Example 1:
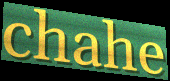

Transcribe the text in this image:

chahe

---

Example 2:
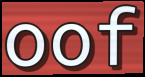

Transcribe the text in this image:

oof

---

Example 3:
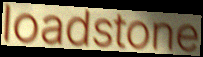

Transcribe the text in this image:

loadstone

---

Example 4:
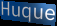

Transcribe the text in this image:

Huque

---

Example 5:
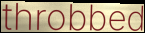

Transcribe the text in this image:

throbbed